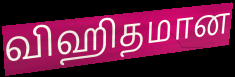
விஹிதமான